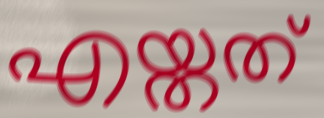
എയ്തത്